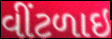
વીંટળાઇ